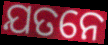
ଯତନେ